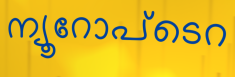
ന്യൂറോപ്ടെറ